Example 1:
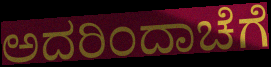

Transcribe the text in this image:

ಅದರಿಂದಾಚೆಗೆ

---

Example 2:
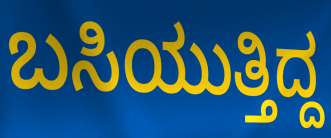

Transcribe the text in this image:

ಬಸಿಯುತ್ತಿದ್ದ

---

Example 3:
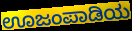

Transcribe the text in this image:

ಊಜಂಪಾಡಿಯ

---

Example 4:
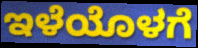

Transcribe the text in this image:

ಇಳೆಯೊಳಗೆ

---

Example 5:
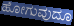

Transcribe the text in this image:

ಹೋಗುವುದೂ